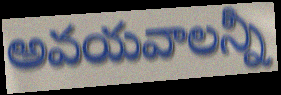
అవయవాలన్నీ